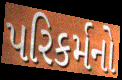
પરિકર્મનો